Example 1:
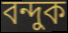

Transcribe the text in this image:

বন্দুক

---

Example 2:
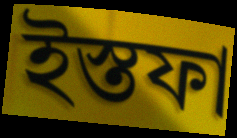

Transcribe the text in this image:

ইস্তফা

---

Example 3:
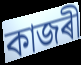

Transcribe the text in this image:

কাজৰী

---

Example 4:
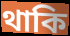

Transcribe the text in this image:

থাকি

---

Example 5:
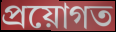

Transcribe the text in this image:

প্ৰয়োগত